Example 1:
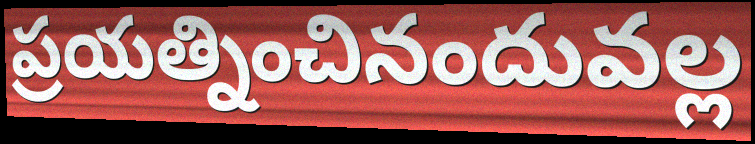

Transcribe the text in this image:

ప్రయత్నించినందువల్ల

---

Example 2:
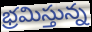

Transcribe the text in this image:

భ్రమిస్తున్న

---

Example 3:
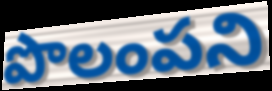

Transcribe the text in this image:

పొలంపని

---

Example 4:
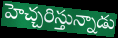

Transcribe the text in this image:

హెచ్చరిస్తున్నాడు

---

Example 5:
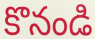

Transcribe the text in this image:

కొనండి